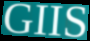
GIIS